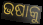
ଭଷାକୁ